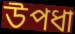
উপধা